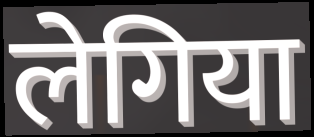
लेगिया